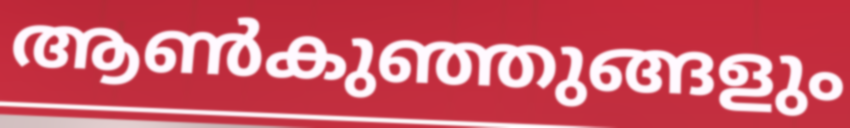
ആൺകുഞ്ഞുങ്ങളും